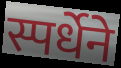
स्पर्धेने